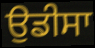
ਉਡੀਸਾ